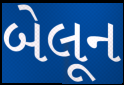
બેલૂન